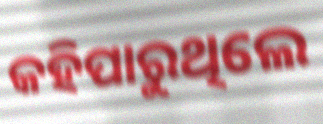
କହିପାରୁଥିଲେ